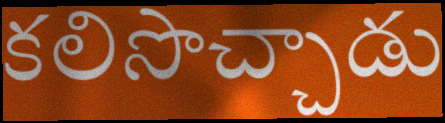
కలిసొచ్చాడు